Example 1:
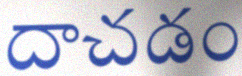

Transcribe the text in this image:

దాచడం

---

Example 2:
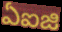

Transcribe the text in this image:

ఏఐజి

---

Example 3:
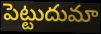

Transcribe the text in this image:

పెట్టుదుమా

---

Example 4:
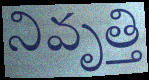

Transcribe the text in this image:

నివృత్తి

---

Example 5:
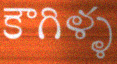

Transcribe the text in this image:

కౌగిళ్ళ